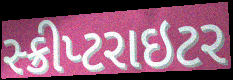
સ્ક્રીપ્ટરાઇટર